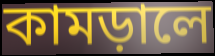
কামড়ালে